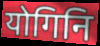
योगिनि